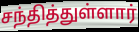
சந்தித்துள்ளார்